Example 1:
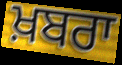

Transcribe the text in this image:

ਖ਼ਬਰਾ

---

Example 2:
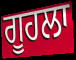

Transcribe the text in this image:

ਗੂਹਲਾ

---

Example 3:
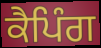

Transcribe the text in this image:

ਕੈਪਿੰਗ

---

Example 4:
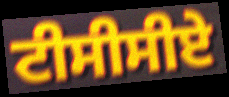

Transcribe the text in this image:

ਟੀਸੀਸੀਏ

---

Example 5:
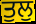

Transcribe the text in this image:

ਤੁਲੁ